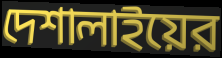
দেশালাইয়ের